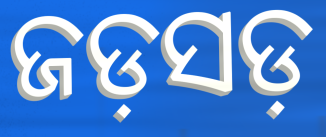
ଜଡ଼ସଡ଼